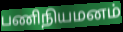
பணிநியமனம்